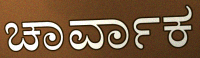
ಚಾರ್ವಾಕ